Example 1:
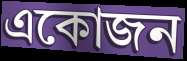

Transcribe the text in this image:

একোজন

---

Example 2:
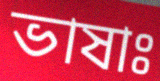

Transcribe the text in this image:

ভাষাঃ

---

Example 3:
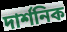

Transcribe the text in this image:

দাৰ্শনিক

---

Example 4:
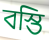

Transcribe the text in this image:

বস্তি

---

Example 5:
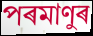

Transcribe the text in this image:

পৰমাণুৰ